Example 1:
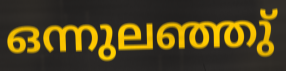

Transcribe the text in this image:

ഒന്നുലഞ്ഞു്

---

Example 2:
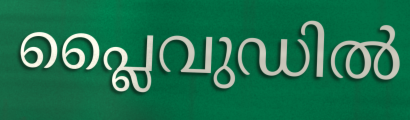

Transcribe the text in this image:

പ്ലൈവുഡിൽ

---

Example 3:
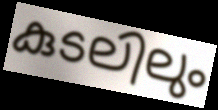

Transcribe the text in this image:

കുടലിലും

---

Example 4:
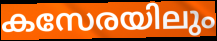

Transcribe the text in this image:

കസേരയിലും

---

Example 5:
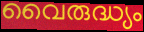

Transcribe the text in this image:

വൈരുദ്ധ്യം